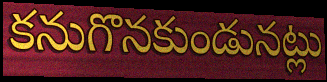
కనుగొనకుండునట్లు